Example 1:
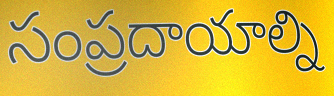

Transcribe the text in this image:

సంప్రదాయాల్ని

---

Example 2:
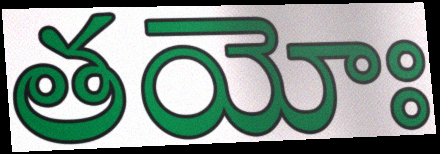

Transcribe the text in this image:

తయోః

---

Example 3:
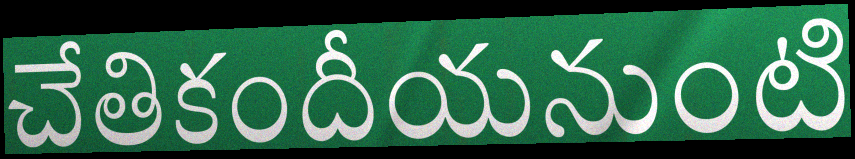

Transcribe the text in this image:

చేతికందీయనుంటి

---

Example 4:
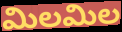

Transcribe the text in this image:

మిలమిల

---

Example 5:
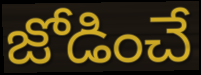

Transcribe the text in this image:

జోడించే